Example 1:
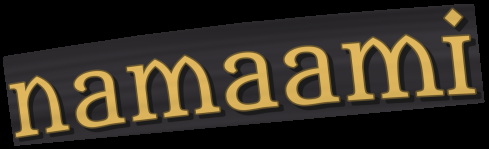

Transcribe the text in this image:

namaami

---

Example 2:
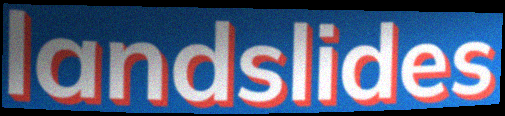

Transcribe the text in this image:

landslides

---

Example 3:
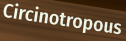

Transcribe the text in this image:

Circinotropous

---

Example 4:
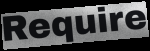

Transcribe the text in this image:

Require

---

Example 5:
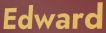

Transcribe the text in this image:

Edward